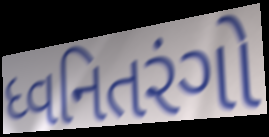
ધ્વનિતરંગો